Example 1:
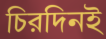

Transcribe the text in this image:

চিরদিনই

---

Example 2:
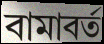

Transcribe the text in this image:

বামাবর্ত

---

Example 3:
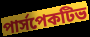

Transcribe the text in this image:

পার্সপেকটিভ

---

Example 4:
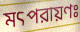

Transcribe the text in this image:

মৎপরায়ণঃ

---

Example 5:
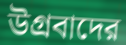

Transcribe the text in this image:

উগ্রবাদের